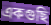
একগুছি